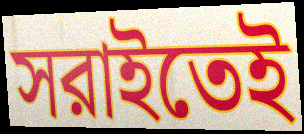
সরাইতেই